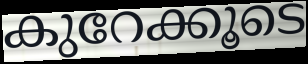
കുറേക്കൂടെ